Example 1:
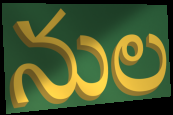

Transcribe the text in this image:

నుల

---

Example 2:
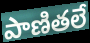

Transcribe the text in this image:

పాణితలే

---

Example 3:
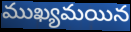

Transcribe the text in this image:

ముఖ్యమయిన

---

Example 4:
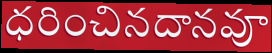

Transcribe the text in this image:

ధరించినదానవూ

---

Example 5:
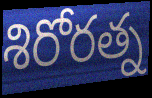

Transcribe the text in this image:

శిరోరత్న